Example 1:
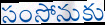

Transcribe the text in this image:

సంసోనుకు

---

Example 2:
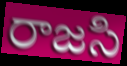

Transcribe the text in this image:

రాజసి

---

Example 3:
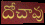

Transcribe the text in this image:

దోచావు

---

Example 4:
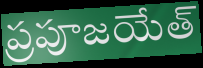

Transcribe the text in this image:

ప్రపూజయేత్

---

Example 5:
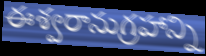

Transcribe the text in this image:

ఈశ్వరానుగ్రహాన్ని